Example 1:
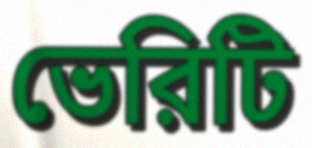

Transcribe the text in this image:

ভেরিটি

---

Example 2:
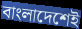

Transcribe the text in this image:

বাংলাদেশেই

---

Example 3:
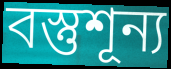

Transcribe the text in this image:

বস্তুশূন্য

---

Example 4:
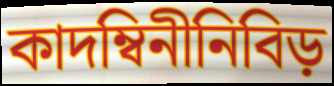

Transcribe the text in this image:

কাদম্বিনীনিবিড়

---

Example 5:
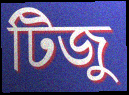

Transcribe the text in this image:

টিজু